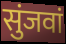
सुंजवां